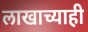
लाखाच्याही